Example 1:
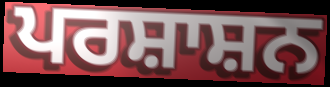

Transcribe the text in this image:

ਪਰਸ਼ਾਸ਼ਨ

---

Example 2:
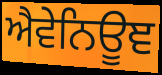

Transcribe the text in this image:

ਐਵੇਨਿਊਞ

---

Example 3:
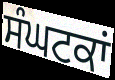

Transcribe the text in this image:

ਸੰਘਟਕਾਂ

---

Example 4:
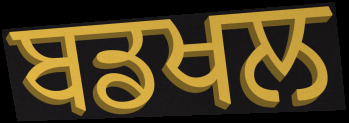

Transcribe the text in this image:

ਬਡਖਲ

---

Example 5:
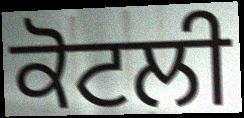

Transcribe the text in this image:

ਕੋਟਲੀ